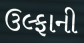
ઉલ્ફાની